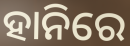
ହାନିରେ